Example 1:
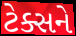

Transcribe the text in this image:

ટેક્સને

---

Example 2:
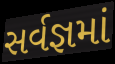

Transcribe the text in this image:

સર્વજ્ઞમાં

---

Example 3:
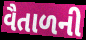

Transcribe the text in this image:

વૈતાળની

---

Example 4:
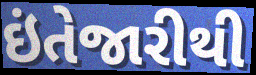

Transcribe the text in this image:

ઇંતેજારીથી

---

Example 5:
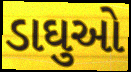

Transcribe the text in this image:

ડાઘુઓ